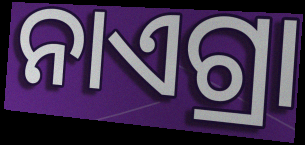
ନାଏଗ୍ରା